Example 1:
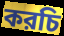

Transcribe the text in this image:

করচি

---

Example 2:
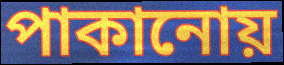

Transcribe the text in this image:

পাকানোয়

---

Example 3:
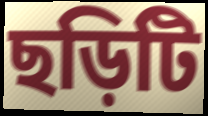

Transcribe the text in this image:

ছড়িটি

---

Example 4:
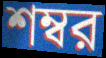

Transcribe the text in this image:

শম্বর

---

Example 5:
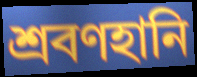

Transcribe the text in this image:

শ্রবণহানি